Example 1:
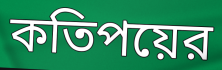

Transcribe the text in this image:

কতিপয়ের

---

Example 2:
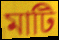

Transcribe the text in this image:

মাটি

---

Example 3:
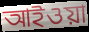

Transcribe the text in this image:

আইওয়া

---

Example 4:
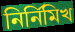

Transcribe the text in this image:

নির্নিমিখ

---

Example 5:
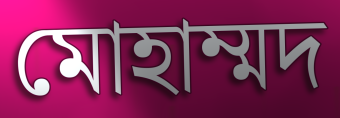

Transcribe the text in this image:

মোহাম্মদ